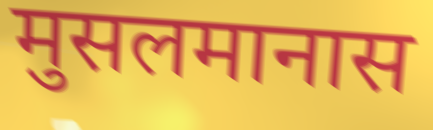
मुसलमानास